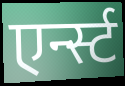
एर्न्स्ट